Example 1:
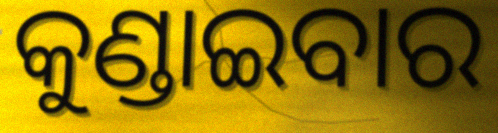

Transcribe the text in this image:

କୁଣ୍ଡାଇବାର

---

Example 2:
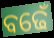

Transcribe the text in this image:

ବଢେଁ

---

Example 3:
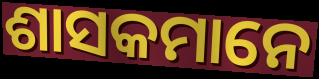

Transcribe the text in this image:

ଶାସକମାନେ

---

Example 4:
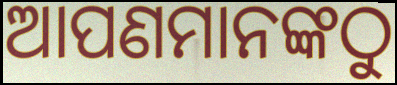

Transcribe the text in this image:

ଆପଣମାନଙ୍କଠୁ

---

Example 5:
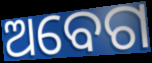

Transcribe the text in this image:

ଅବେଗ